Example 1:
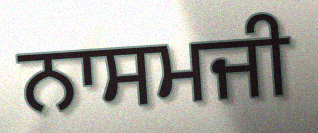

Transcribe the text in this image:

ਨਾਸਮਜੀ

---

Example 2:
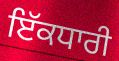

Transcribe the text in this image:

ਇੱਕਧਾਰੀ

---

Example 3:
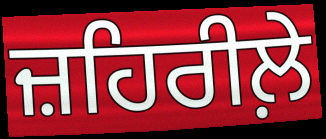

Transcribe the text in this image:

ਜ਼ਹਿਰੀਲ਼ੇ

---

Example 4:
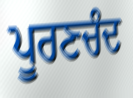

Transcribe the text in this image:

ਪੂਰਣਚੰਦ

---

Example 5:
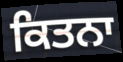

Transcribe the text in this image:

ਕਿਤਨਾ